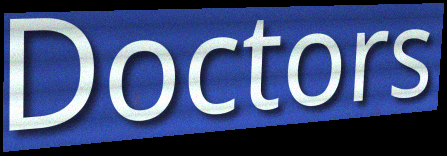
Doctors